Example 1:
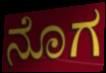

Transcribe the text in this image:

ನೊಗ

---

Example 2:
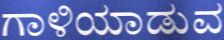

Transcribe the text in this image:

ಗಾಳಿಯಾಡುವ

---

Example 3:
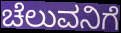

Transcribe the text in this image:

ಚೆಲುವನಿಗೆ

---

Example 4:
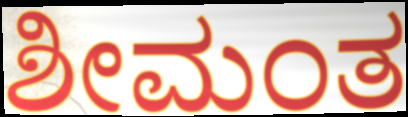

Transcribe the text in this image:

ಶೀಮಂತ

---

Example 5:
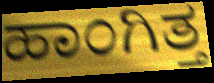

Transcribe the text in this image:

ಹಾಂಗಿತ್ತ